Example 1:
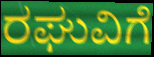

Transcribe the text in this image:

ರಘುವಿಗೆ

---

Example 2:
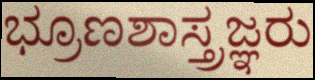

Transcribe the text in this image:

ಭ್ರೂಣಶಾಸ್ತ್ರಜ್ಞರು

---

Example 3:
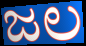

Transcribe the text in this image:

ಜಲ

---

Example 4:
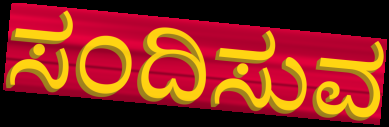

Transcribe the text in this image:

ಸಂದಿಸುವ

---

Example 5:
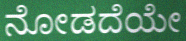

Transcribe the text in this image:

ನೋಡದೆಯೇ